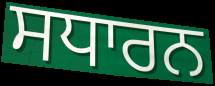
ਸਧਾਰਨ